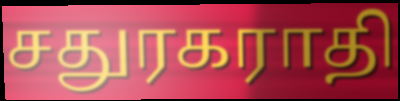
சதுரகராதி